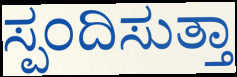
ಸ್ಪಂದಿಸುತ್ತಾ